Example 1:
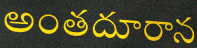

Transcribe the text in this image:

అంతదూరాన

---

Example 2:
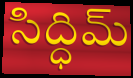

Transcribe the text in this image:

సిద్ధిమ్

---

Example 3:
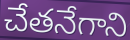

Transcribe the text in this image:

చేతనేగాని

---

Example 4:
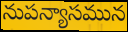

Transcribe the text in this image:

నుపన్యాసమున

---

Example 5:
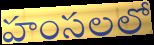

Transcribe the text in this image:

హంసలలో